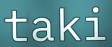
taki